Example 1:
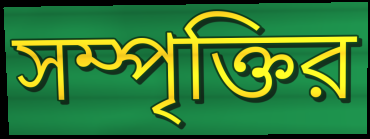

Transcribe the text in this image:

সম্পৃক্তির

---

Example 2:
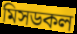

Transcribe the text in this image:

মিসডকল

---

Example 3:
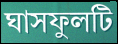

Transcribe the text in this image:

ঘাসফুলটি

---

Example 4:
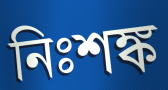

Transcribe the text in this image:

নিঃশঙ্ক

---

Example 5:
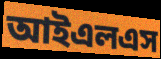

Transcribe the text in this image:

আইএলএস